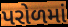
પરોળમાં